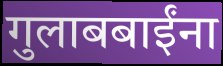
गुलाबबाईंना